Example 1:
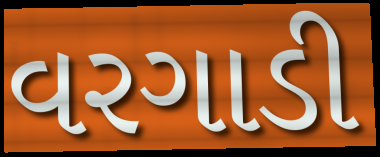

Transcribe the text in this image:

વરગાડી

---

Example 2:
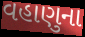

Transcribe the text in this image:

વહાણુના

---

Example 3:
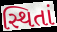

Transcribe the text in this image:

સ્થિતાં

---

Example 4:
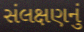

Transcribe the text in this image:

સંલક્ષણનું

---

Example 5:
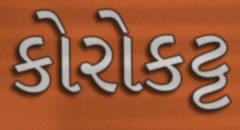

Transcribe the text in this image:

કોરોકટ્ટ